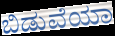
ಬಿಡುವೆಯಾ